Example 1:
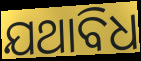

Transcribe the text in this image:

ଯଥାବିଧ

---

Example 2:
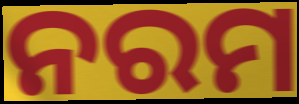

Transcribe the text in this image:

ନରମ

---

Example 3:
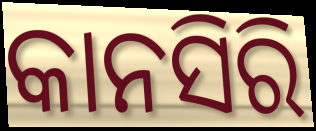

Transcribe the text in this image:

କାନସିରି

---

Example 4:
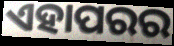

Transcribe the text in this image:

ଏହାପରର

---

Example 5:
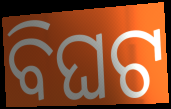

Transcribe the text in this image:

ବିଘଟ